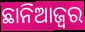
ଛାନିଆଜ୍ୱର